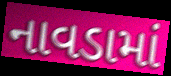
નાવડામાં